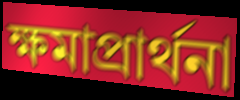
ক্ষমাপ্রার্থনা